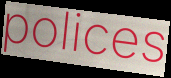
polices